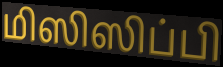
மிஸிஸிப்பி